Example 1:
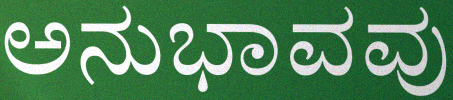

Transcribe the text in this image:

ಅನುಭಾವವು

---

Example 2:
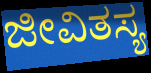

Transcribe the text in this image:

ಜೀವಿತಸ್ಯ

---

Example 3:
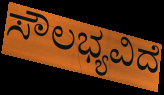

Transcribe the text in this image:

ಸೌಲಭ್ಯವಿದೆ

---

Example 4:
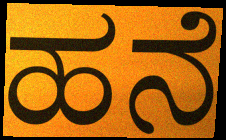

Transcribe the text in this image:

ಹನೆ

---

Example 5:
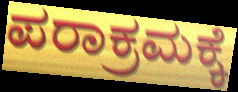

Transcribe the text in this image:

ಪರಾಕ್ರಮಕ್ಕೆ